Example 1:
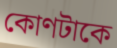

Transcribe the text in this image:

কোণটাকে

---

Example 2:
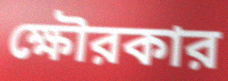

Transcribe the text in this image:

ক্ষৌরকার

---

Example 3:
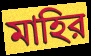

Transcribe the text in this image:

মাহির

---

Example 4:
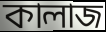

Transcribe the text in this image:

কালাজ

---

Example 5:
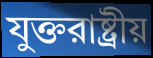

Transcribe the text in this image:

যুক্তরাষ্ট্রীয়